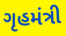
ગૃહમંત્રી